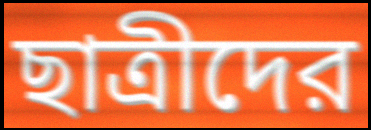
ছাত্রীদের